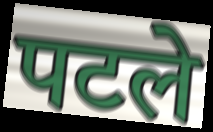
पटले